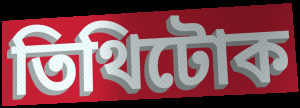
তিথিটোক